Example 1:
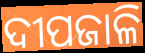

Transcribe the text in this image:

ଦୀପଜାଳି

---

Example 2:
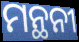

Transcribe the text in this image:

ମନ୍ଥନୀ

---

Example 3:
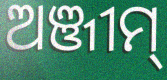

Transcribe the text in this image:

ଅଞ୍ଜୀମ୍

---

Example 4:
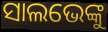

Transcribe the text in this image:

ସାଲଭେଙ୍କୁ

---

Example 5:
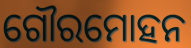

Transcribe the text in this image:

ଗୌରମୋହନ